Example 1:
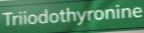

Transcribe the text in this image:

Triiodothyronine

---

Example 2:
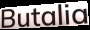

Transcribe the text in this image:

Butalia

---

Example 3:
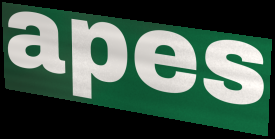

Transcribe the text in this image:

apes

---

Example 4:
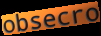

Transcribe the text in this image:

obsecro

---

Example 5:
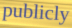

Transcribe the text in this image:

publicly